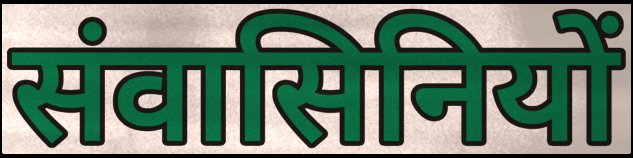
संवासिनियों